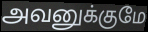
அவனுக்குமே